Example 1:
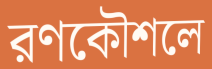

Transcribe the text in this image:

রণকৌশলে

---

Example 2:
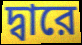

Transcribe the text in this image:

দ্বারে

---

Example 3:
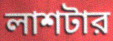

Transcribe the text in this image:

লাশটার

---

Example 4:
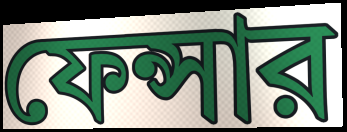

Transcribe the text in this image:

ফেন্সার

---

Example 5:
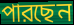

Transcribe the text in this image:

পারছেন